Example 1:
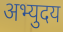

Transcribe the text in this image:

अभ्युदय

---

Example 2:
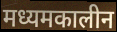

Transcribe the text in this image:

मध्यमकालीन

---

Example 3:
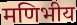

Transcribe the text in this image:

मणिभीय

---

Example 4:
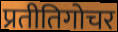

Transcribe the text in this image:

प्रतीतिगोचर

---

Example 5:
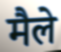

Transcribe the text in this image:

मैले